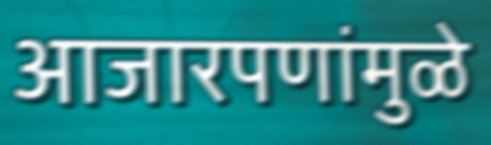
आजारपणांमुळे